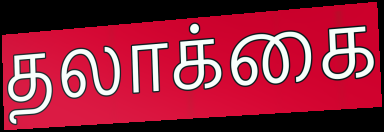
தலாக்கை